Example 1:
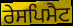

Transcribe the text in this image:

ਰੇਸਪਿਮੈਟ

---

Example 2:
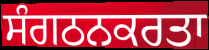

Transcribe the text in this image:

ਸੰਗਠਨਕਰਤਾ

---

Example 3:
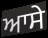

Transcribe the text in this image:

ਆਸੇ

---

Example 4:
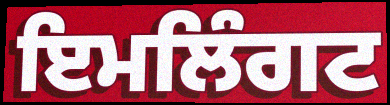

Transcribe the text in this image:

ਇਮਲਿੰਗਟ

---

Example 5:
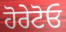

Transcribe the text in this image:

ਹੋਰੇਟੋਓ